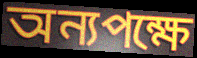
অন্যপক্ষে